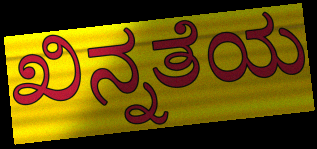
ಖಿನ್ನತೆಯ